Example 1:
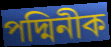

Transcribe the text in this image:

পদ্মিনীক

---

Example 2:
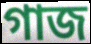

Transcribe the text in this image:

গাজ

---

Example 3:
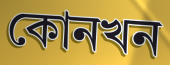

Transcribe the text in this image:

কোনখন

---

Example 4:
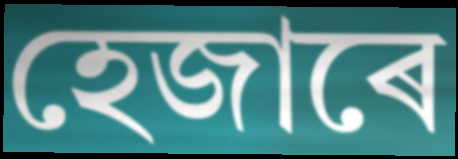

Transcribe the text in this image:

হেজাৰে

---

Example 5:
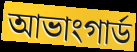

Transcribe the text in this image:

আভাংগাৰ্ড